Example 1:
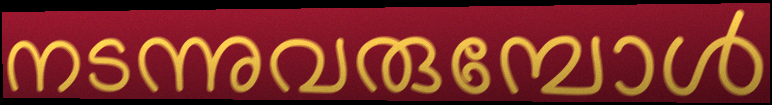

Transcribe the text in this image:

നടന്നുവരുമ്പോൾ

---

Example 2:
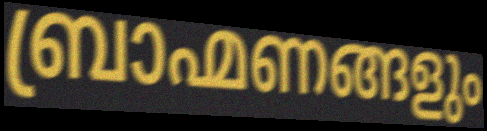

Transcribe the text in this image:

ബ്രാഹ്മണങ്ങളും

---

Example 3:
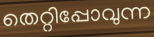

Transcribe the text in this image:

തെറ്റിപ്പോവുന്ന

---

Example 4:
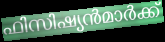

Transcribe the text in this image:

ഫിസിഷ്യൻമാർക്ക്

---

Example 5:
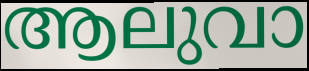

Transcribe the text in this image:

ആലുവാ